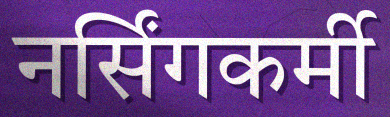
नर्सिंगकर्मी